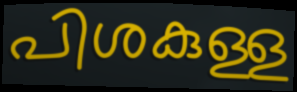
പിശകുള്ള